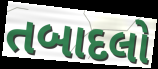
તબાદલો